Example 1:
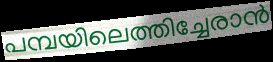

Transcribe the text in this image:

പമ്പയിലെത്തിച്ചേരാൻ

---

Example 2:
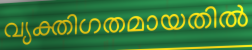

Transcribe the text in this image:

വ്യക്തിഗതമായതിൽ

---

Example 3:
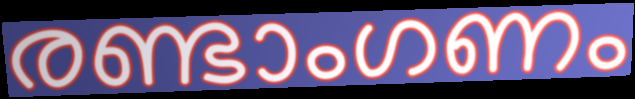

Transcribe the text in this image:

രണ്ടാംഗണം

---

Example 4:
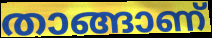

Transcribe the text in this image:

താങ്ങാണ്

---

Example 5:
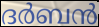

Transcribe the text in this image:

ദർബൻ